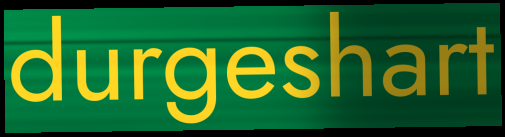
durgeshart